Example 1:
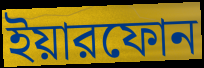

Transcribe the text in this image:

ইয়ারফোন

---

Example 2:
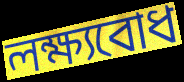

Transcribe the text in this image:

লক্ষ্যবোধ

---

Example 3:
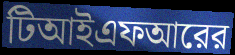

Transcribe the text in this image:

টিআইএফআরের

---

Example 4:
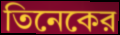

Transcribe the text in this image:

তিনেকের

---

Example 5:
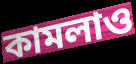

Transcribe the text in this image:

কামলাও